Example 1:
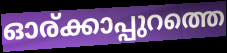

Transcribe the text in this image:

ഓര്ക്കാപ്പുറത്തെ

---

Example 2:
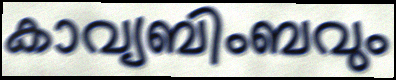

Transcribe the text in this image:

കാവ്യബിംബവും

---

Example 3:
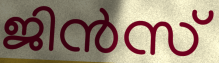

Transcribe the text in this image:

ജിൻസ്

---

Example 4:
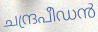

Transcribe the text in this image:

ചന്ദ്രപീഡൻ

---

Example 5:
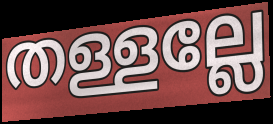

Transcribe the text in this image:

തള്ളല്ലേ